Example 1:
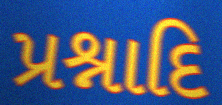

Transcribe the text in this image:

પ્રશ્નાદિ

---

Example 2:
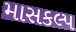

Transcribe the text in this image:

માસકલ્પ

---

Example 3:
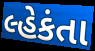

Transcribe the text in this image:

લ્હેકંતા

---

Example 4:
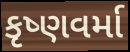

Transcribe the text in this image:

કૃષ્ણવર્મા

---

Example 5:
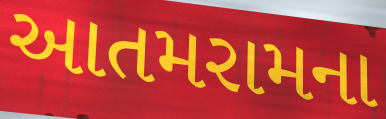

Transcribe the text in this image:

આતમરામના